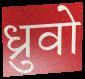
ध्रुवो